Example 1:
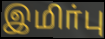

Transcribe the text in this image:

இமிர்பு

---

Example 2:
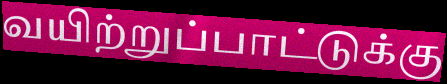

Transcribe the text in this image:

வயிற்றுப்பாட்டுக்கு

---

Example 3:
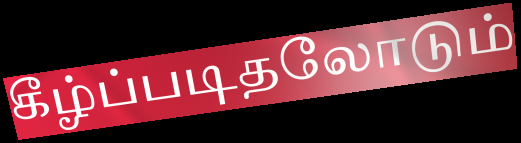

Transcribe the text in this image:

கீழ்ப்படிதலோடும்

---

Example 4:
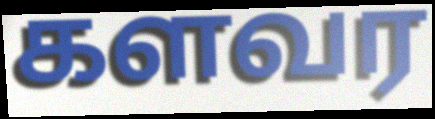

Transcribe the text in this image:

களவர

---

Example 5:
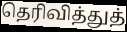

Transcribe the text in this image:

தெரிவித்துத்